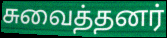
சுவைத்தனர்